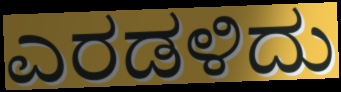
ಎರಡಳಿದು